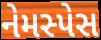
નેમસ્પેસ